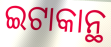
ଇଟାକାନ୍ଥ